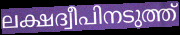
ലക്ഷദ്വീപിനടുത്ത്